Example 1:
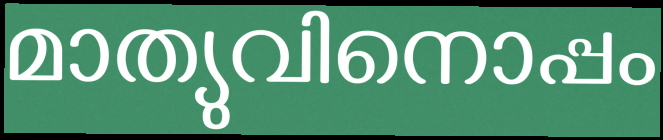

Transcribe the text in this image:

മാത്യുവിനൊപ്പം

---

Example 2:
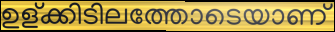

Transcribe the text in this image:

ഉള്ക്കിടിലത്തോടെയാണ്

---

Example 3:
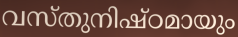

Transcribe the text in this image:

വസ്തുനിഷ്ഠമായും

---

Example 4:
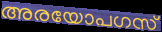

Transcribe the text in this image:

അരയോപഗസ്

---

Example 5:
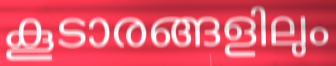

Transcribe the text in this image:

കൂടാരങ്ങളിലും